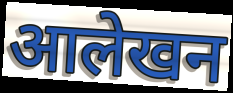
आलेखन